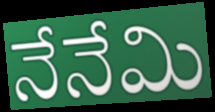
నేనేమి